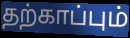
தற்காப்பும்